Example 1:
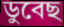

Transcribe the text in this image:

ডুবেছ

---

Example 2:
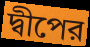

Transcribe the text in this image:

দ্বীপের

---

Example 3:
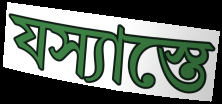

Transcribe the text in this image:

যস্যাস্তে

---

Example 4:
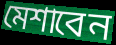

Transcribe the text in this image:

মেশাবেন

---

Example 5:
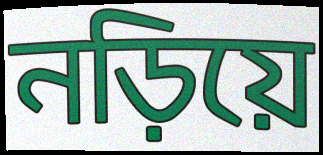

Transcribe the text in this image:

নড়িয়ে